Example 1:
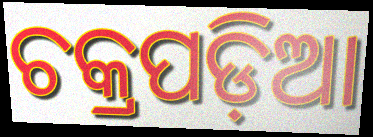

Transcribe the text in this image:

ଚକ୍ରପଡ଼ିଆ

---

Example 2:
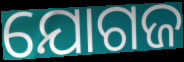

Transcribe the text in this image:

ଯୋଗଜ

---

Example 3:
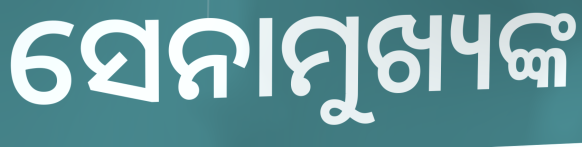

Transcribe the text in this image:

ସେନାମୁଖ୍ୟଙ୍କ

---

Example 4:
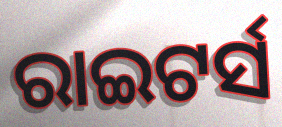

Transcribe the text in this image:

ରାଇଟର୍ସ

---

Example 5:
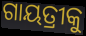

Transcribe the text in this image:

ଗାୟତ୍ରୀକୁ